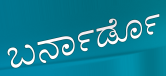
ಬರ್ನಾರ್ಡೊ